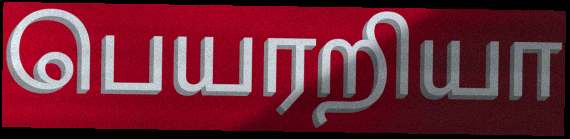
பெயரறியா